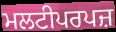
ਮਲਟੀਪਰਪਜ਼